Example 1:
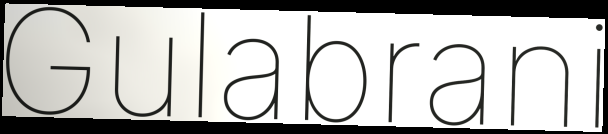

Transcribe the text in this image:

Gulabrani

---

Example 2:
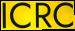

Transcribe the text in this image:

ICRC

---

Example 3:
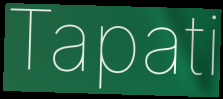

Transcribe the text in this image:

Tapati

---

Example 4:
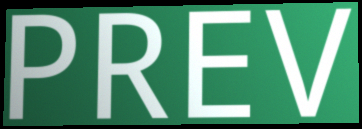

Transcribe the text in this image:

PREV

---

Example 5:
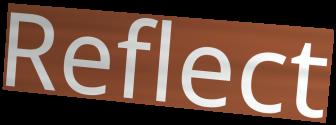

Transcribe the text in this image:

Reflect